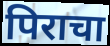
पिराचा